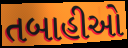
તબાહીઓ